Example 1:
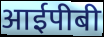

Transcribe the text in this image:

आईपीबी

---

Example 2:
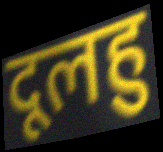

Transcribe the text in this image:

दूलहु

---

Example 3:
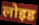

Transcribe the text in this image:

लोइड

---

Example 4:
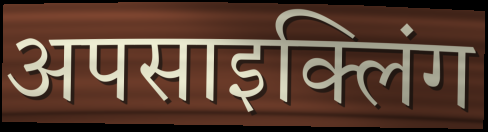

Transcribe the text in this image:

अपसाइक्लिंग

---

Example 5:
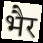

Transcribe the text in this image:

भैर